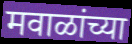
मवाळांच्या